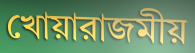
খোয়ারাজমীয়